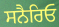
ਸਨੈਰਿਓ